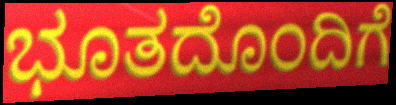
ಭೂತದೊಂದಿಗೆ